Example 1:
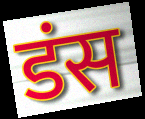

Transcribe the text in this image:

डंस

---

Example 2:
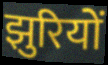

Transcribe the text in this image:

झुरियों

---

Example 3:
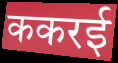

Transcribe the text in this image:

ककरई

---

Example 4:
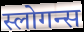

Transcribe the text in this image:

स्लोगन्स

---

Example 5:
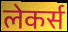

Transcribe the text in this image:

लेकर्स